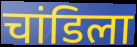
चांडिला